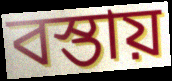
বস্তায়